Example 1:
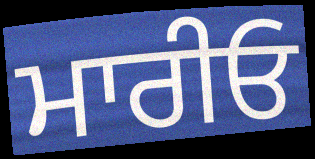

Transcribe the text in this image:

ਮਾਰੀਓ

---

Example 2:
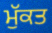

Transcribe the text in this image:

ਮੁੱਕਤ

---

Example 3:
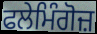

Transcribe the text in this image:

ਫਲੇਮਿੰਗੋਜ਼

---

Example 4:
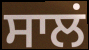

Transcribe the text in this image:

ਸਾਲਂ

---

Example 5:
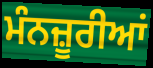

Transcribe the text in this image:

ਮੰਨਜ਼ੂਰੀਆਂ